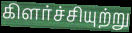
கிளர்ச்சியுற்று